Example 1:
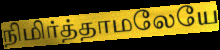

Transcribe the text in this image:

நிமிர்த்தாமலேயே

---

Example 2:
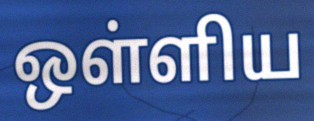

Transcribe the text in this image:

ஒள்ளிய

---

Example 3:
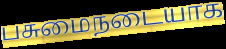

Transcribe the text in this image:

பசுமைநடையாக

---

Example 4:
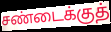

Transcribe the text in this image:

சண்டைக்குத்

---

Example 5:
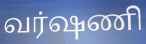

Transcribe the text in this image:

வர்ஷணி